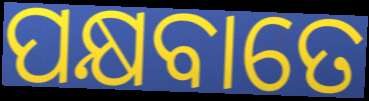
ପକ୍ଷବାତେ